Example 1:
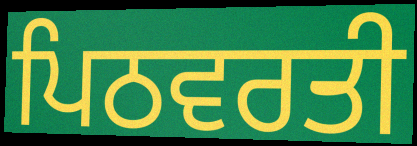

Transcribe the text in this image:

ਪਿਠਵਰਤੀ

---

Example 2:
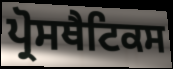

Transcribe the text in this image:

ਪ੍ਰੋਸਥੈਟਿਕਸ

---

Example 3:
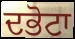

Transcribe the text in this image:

ਦਭੋਟਾ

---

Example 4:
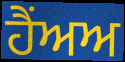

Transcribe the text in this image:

ਹੈਂਅਅ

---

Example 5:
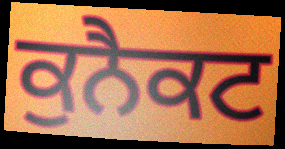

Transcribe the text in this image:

ਕੁਨੈਕਟ